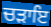
ਚੜਾਇ